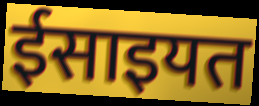
ईसाइयत